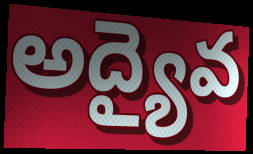
అద్యైవ